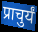
प्राचुर्यं